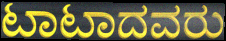
ಟಾಟಾದವರು